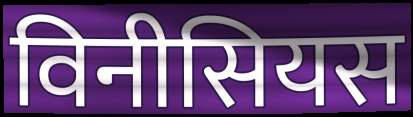
विनीसियस